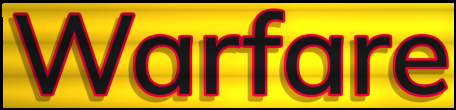
Warfare